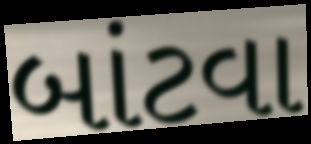
બાંટવા